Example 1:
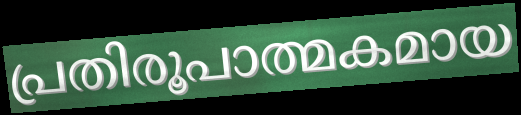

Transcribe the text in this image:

പ്രതിരൂപാത്മകമായ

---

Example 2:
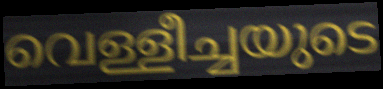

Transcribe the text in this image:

വെള്ളീച്ചയുടെ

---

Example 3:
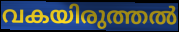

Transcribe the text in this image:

വകയിരുത്തൽ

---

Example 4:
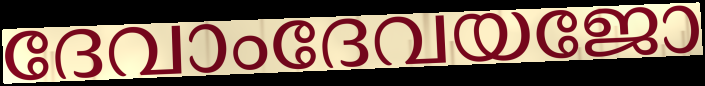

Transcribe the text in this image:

ദേവാംദേവയജോ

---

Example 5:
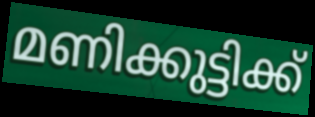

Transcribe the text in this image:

മണിക്കുട്ടിക്ക്